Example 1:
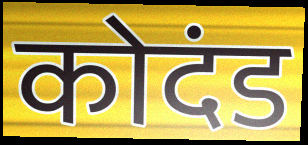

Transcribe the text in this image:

कोदंड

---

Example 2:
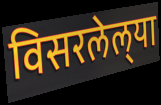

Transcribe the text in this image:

विसरलेल्या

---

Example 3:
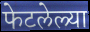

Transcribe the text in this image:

फेटलेल्या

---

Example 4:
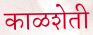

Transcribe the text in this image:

काळशेती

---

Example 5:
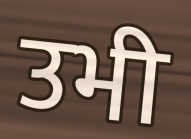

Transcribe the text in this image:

उभी